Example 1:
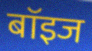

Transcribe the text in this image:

बॉइज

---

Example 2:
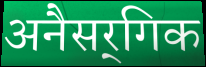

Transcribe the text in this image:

अनैसर्गिक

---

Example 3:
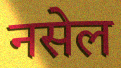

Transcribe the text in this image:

नसेल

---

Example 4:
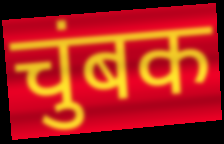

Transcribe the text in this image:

चुंबक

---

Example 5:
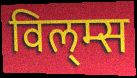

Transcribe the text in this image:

विल्म्स